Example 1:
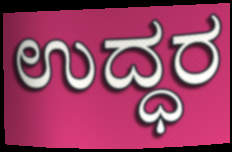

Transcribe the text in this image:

ಉದ್ಧರ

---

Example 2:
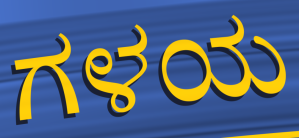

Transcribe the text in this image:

ಗಳಯ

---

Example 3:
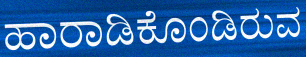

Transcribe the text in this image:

ಹಾರಾಡಿಕೊಂಡಿರುವ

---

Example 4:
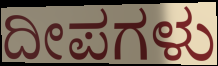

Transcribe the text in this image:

ದೀಪಗಳು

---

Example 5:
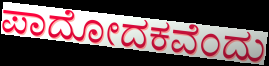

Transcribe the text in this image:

ಪಾದೋದಕವೆಂದು